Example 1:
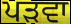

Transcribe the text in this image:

ਪੜਵਾ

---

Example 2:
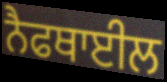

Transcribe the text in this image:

ਨੈਫਥਾਈਲ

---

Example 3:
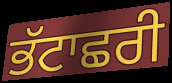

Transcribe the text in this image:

ਭੱਟਾਛਰੀ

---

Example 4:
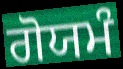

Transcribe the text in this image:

ਗੋਯਮੰ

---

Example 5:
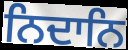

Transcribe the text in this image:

ਨਿਦਾਨਿ